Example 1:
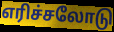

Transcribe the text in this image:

எரிச்சலோடு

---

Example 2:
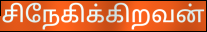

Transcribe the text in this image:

சிநேகிக்கிறவன்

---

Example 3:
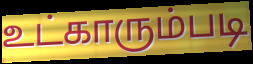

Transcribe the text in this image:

உட்காரும்படி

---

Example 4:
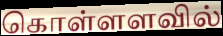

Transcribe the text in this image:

கொள்ளளவில்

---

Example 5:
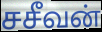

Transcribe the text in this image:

சசீவன்